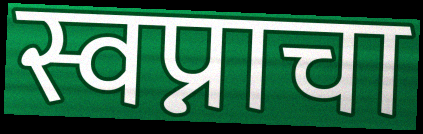
स्वप्नाचा